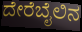
ದೇರೆಬೈಲಿನ